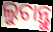
ଲୁଚାନ୍ତୁ